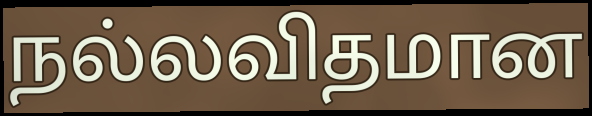
நல்லவிதமான